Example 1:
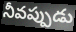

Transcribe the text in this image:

నీవప్పుడు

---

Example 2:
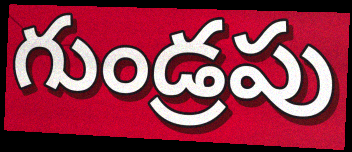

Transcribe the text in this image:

గుండ్రపు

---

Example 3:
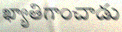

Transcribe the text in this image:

ఖ్యాతిగాంచాడు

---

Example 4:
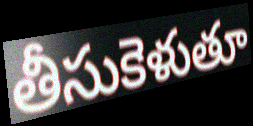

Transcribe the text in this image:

తీసుకెళుతూ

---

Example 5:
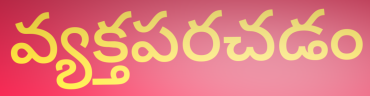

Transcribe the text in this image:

వ్యక్తపరచడం